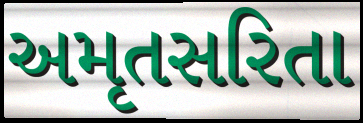
અમૃતસરિતા